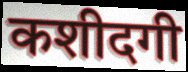
कशीदगी